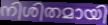
നിശിതമായി